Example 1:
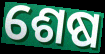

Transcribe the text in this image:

ଶେଷ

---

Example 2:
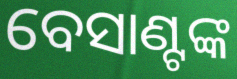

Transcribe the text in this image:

ବେସାଣ୍ଟଙ୍କ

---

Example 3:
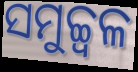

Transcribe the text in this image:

ସମୁଚ୍ଚ୍ୱଳ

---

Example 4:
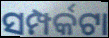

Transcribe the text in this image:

ସମ୍ପର୍କଟା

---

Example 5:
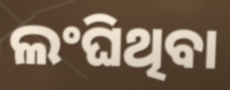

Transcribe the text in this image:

ଲଂଘିଥିବା